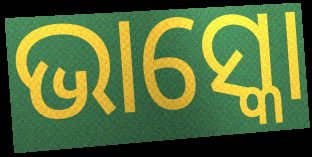
ଭାସ୍କୋ